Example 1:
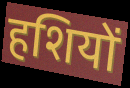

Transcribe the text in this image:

हशियों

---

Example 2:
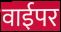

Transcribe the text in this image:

वाईपर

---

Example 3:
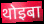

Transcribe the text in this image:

थोइबा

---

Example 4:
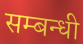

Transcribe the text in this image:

सम्बन्धी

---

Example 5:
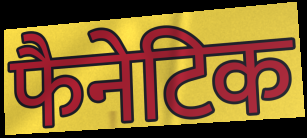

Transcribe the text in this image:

फैनेटिक